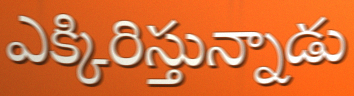
ఎక్కిరిస్తున్నాడు